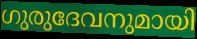
ഗുരുദേവനുമായി